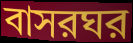
বাসরঘর